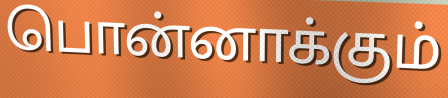
பொன்னாக்கும்